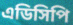
এডিসিপি